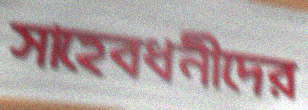
সাহেবধনীদের